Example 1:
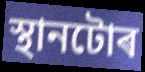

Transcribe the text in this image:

স্থানটোৰ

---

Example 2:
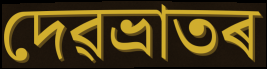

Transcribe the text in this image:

দেৱভ্ৰাতৰ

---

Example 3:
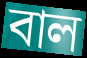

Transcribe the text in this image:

বাল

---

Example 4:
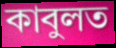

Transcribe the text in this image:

কাবুলত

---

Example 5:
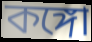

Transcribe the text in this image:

কঙ্গো